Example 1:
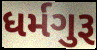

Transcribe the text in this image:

ધર્મગુરૂ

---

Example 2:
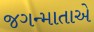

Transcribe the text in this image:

જગન્માતાએ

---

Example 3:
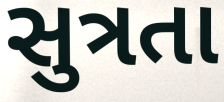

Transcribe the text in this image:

સુત્રતા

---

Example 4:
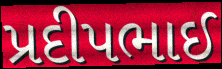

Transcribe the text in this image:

પ્રદીપભાઈ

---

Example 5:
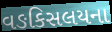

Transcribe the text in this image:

વઙકિસલયના